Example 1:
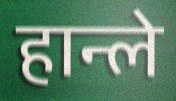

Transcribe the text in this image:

हान्ले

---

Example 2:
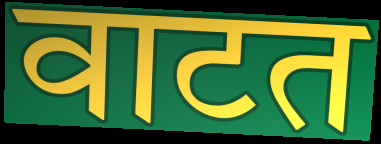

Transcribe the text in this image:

वाटत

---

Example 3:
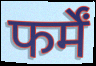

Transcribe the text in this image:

फर्में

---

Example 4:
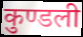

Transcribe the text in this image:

कुण्डली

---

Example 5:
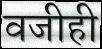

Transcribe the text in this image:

वजीही